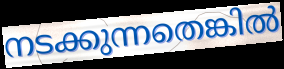
നടക്കുന്നതെങ്കിൽ